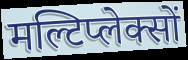
मल्टिप्लेक्सों